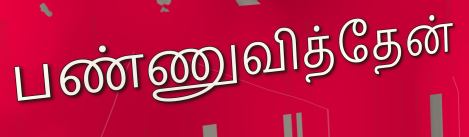
பண்ணுவித்தேன்